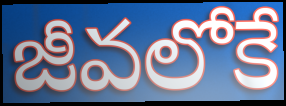
జీవలోకే